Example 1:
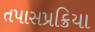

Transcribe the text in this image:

તપાસપ્રક્રિયા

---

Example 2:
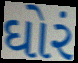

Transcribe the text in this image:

ઘોરં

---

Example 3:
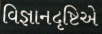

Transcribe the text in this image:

વિજ્ઞાનદૃષ્ટિએ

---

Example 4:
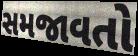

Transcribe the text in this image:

સમજાવતો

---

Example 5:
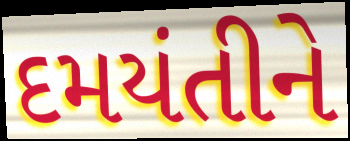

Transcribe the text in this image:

દમયંતીને